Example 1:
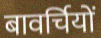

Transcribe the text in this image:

बावर्चियों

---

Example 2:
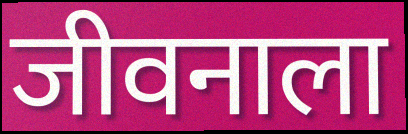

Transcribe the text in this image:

जीवनाला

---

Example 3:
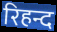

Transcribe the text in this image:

रिहन्द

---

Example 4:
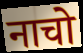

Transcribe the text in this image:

नाचो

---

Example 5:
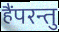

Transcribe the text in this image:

हैंपरन्तु